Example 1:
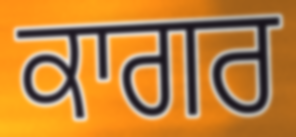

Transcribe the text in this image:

ਕਾਗਰ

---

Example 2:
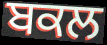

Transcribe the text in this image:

ਬਕਲ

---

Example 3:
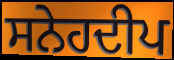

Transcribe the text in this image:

ਸਨੇਹਦੀਪ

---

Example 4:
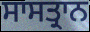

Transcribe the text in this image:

ਸਾਸਤ੍ਰਾਨ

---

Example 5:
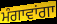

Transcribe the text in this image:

ਮੰਗਾਵਾਂਗਾ